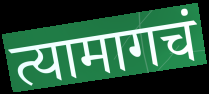
त्यामागचं